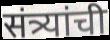
संत्र्यांची